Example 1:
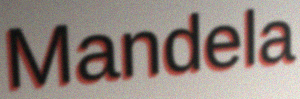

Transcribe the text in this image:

Mandela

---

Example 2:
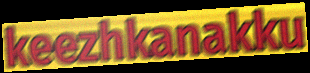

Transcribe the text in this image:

keezhkanakku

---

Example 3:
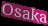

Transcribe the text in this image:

Osaka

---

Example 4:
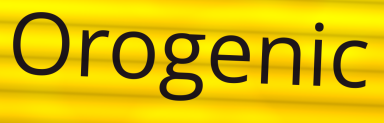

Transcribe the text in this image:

Orogenic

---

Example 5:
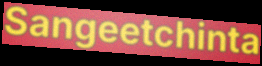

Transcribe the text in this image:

Sangeetchinta